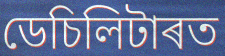
ডেচিলিটাৰত